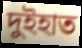
দুইহাত